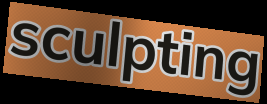
sculpting